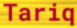
Tariq